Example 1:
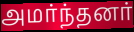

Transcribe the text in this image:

அமர்ந்தனர்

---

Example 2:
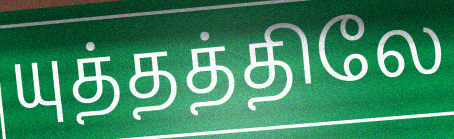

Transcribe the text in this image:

யுத்தத்திலே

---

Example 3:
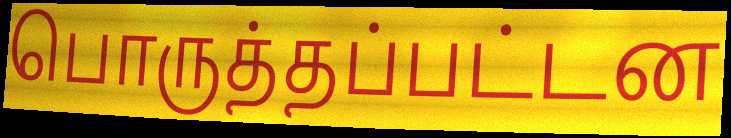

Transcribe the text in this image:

பொருத்தப்பட்டன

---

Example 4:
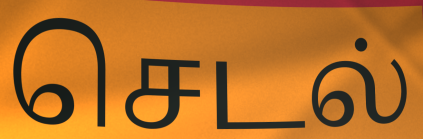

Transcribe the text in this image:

செடல்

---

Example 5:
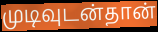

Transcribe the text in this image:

முடிவுடன்தான்